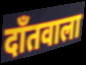
दाँतवाला